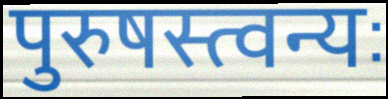
पुरुषस्त्वन्यः